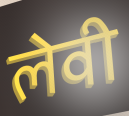
लेवी